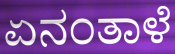
ಏನಂತಾಳೆ